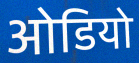
ओडियो